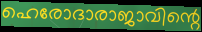
ഹെരോദാരാജാവിന്റെ